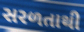
સરળતાથી